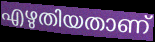
എഴുതിയതാണ്